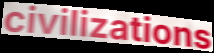
civilizations